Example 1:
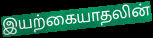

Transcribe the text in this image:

இயற்கையாதலின்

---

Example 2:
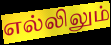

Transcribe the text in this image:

எல்லிலும்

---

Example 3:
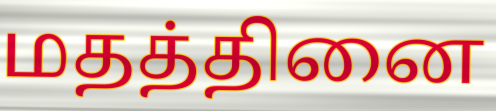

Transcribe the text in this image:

மதத்தினை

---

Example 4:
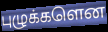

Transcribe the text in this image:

புழுக்களென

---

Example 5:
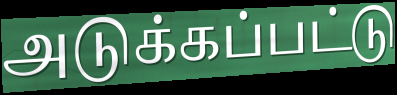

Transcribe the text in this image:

அடுக்கப்பட்டு